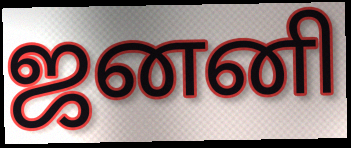
ஜனனி